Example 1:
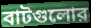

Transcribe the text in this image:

বাটগুলোর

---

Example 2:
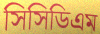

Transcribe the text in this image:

সিসিডিএম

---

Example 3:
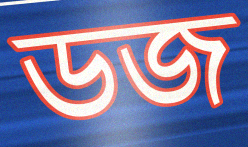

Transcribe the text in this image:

ডজ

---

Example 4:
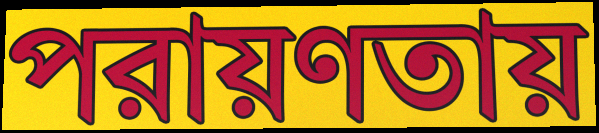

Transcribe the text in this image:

পরায়ণতায়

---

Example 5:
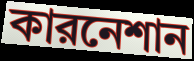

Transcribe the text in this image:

কারনেশান